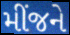
મીંજને